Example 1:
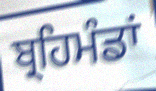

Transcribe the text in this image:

ਬ੍ਰਹਿਮੰਡਾਂ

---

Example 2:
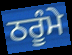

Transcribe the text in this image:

ਠਰੂੰਮੇ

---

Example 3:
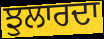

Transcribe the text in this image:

ਝੁਲਾਰਦਾ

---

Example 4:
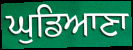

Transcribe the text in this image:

ਘੁਡਿਆਣਾ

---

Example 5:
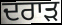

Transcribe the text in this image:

ਦਰਾੜ